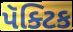
પૅક્ટિક